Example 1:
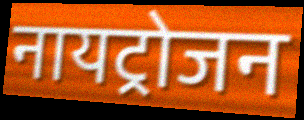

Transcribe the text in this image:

नायट्रोजन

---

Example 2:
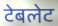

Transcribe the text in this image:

टेबलेट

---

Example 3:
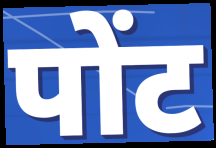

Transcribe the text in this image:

पोंट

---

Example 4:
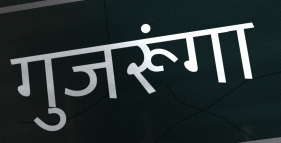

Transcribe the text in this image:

गुजरूंगा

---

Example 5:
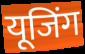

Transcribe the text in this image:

यूजिंग